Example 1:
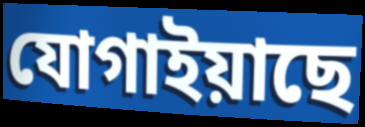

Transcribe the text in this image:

যোগাইয়াছে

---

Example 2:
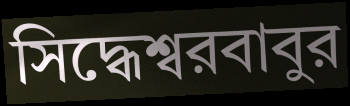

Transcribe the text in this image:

সিদ্ধেশ্বরবাবুর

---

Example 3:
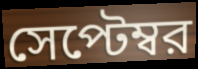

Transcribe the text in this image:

সেপ্টেম্বর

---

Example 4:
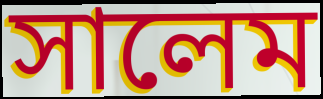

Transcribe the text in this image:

সালেম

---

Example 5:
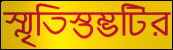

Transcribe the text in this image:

স্মৃতিস্তম্ভটির